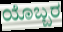
ಯೊಬ್ಬರ